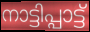
നാട്ടിപ്പാട്ട്